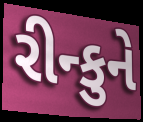
રીન્કુને